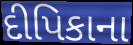
દીપિકાના